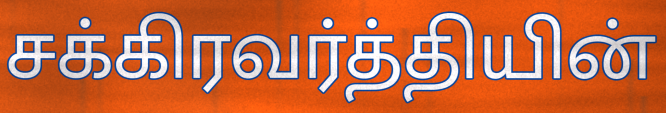
சக்கிரவர்த்தியின்